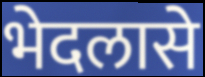
भेदलासे